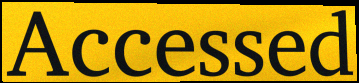
Accessed